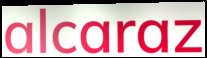
alcaraz